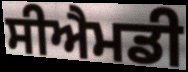
ਸੀਐਮਡੀ